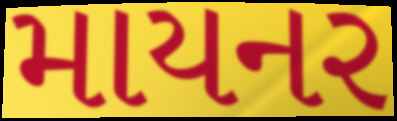
માયનર